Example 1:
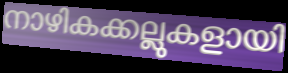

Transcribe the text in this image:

നാഴികക്കല്ലുകളായി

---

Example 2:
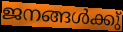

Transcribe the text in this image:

ജനങ്ങൾക്കു്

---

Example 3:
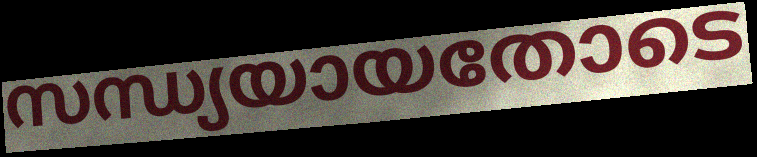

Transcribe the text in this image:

സന്ധ്യയായതോടെ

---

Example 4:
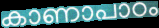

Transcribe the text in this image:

കാണാപാഠം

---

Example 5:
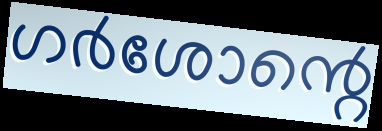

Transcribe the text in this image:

ഗർശോന്റെ